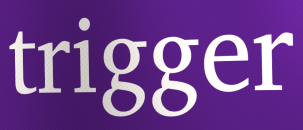
trigger